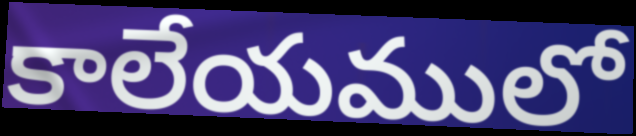
కాలేయములో